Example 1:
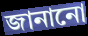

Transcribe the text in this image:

জানানো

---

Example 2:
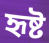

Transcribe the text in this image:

হৃষ্ট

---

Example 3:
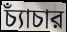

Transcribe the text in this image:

চ্যাঁচার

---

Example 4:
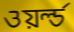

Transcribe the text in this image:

ওয়র্ল্ড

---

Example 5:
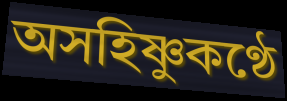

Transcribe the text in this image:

অসহিষ্ণুকণ্ঠে